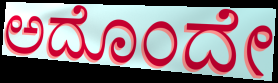
ಅದೊಂದೇ